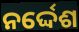
ନର୍ଦ୍ଦେଶ